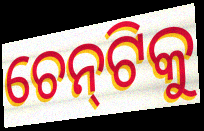
ଚେନ୍‌ଟିକୁ